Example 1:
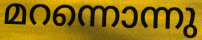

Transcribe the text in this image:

മറന്നൊന്നു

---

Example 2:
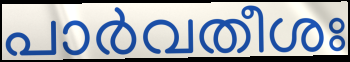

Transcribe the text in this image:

പാർവതീശഃ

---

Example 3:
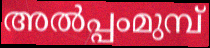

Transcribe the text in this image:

അൽപ്പംമുമ്പ്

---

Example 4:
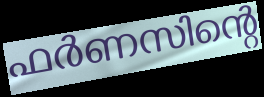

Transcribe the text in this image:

ഫർണസിന്റെ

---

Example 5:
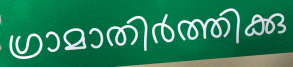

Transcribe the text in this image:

ഗ്രാമാതിർത്തിക്കു